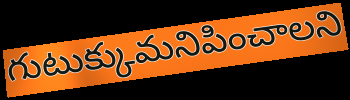
గుటుక్కుమనిపించాలని